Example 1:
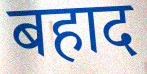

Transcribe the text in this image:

बहाद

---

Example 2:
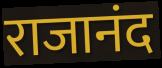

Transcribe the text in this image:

राजानंद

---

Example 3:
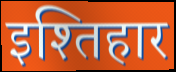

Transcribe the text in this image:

इश्तिहार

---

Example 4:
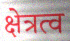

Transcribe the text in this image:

क्षेत्रत्व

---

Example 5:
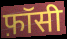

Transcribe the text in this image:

फ़ॉसी